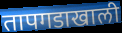
तापगडाखाली